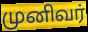
முனிவர்